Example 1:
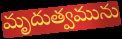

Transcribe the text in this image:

మృదుత్వమును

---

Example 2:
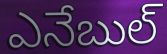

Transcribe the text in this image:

ఎనేబుల్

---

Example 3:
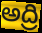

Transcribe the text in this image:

అద్రి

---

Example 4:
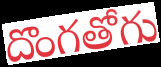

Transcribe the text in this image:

దొంగతోగు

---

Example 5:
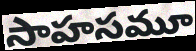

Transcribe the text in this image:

సాహసమూ